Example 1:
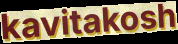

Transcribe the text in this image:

kavitakosh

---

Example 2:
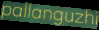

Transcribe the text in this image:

pallanguzhi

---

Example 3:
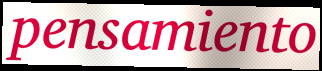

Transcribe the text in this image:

pensamiento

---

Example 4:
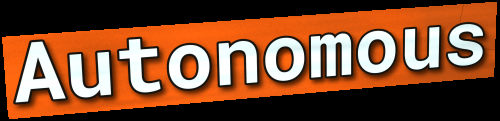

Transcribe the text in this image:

Autonomous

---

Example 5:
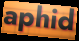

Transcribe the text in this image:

aphid